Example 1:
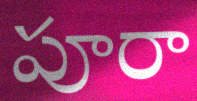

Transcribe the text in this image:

పూరా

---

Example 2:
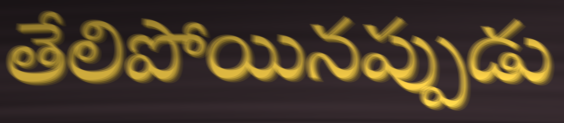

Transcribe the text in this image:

తేలిపోయినప్పుడు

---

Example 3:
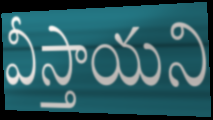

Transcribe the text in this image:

వీస్తాయని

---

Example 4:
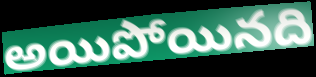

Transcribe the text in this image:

అయిపోయినది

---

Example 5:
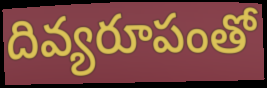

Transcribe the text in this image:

దివ్యరూపంతో